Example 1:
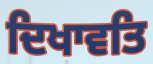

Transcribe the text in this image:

ਦਿਖਾਵਤਿ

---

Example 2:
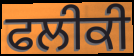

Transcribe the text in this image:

ਫਲੀਕੀ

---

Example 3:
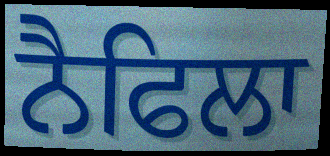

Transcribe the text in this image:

ਨੈਫਿਲਾ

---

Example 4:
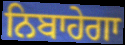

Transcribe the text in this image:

ਨਿਬਾਹੇਗਾ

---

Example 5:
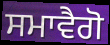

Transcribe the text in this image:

ਸਮਾਵੈਗੋ